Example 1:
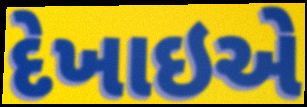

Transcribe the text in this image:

દેખાઇએ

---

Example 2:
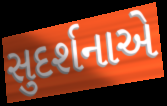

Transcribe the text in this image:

સુદર્શનાએ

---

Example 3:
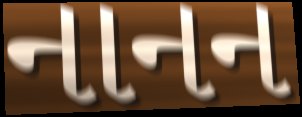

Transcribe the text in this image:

નાનન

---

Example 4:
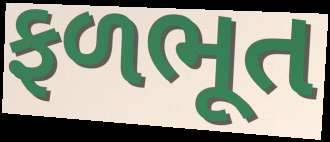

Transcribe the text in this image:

ફળભૂત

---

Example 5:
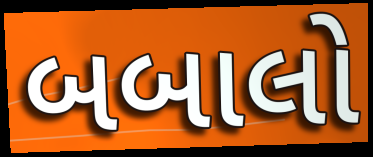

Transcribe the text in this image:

બબાલો